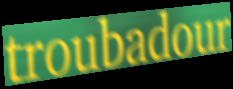
troubadour